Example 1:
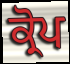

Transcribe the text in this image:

ਕ੍ਰੋਪ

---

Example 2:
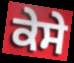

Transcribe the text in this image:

ਕੇਸੇ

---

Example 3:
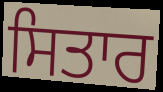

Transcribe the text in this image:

ਸਿਤਾਰ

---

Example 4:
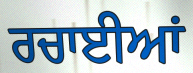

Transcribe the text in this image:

ਰਚਾਈਆਂ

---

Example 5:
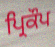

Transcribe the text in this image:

ਪ੍ਰਿਕੌਪ